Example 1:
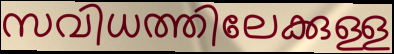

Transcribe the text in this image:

സവിധത്തിലേക്കുള്ള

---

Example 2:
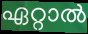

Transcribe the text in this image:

ഏറ്റാൽ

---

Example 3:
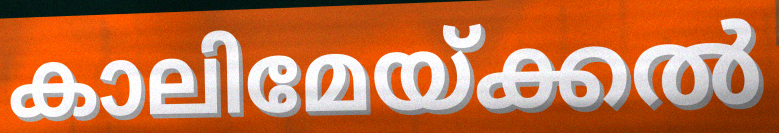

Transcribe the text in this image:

കാലിമേയ്ക്കൽ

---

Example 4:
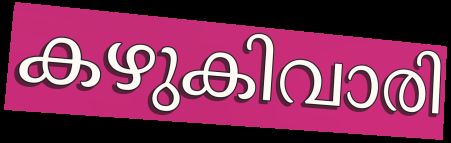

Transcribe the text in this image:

കഴുകിവാരി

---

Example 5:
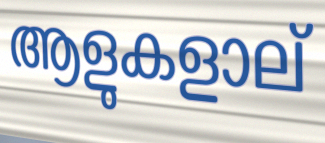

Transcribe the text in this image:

ആളുകളാല്